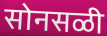
सोनसळी